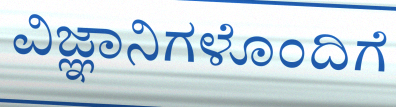
ವಿಜ್ಞಾನಿಗಳೊಂದಿಗೆ